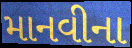
માનવીના